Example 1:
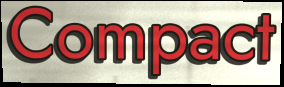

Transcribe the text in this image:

Compact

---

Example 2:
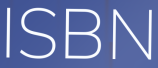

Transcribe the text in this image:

ISBN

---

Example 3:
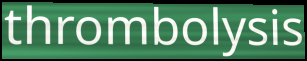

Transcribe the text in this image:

thrombolysis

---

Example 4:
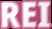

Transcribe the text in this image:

REI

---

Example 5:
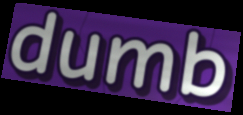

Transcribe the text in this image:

dumb